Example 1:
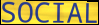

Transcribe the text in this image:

SOCIAL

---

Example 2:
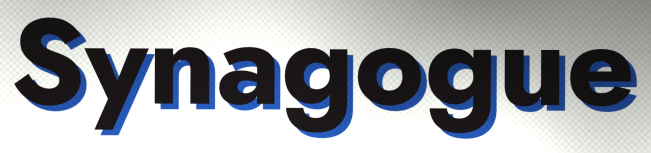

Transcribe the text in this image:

Synagogue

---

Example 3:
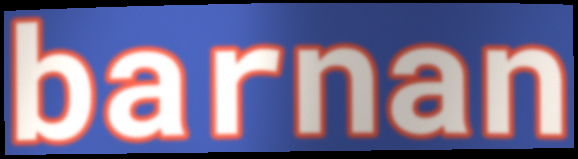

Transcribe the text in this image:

barnan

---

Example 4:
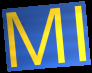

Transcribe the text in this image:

MI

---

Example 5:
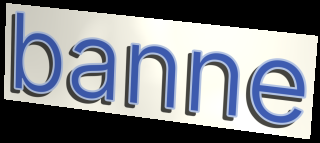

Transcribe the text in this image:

banne